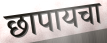
छापायचा